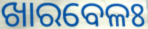
ଖାରବେଳଃ